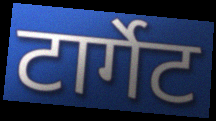
टार्गेट